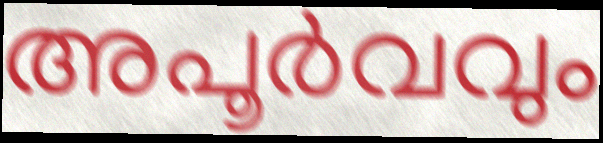
അപൂർവവും